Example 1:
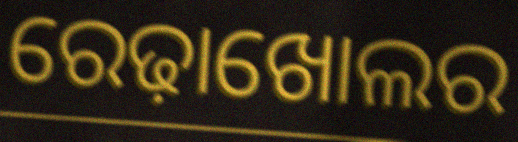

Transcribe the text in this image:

ରେଢ଼ାଖୋଲର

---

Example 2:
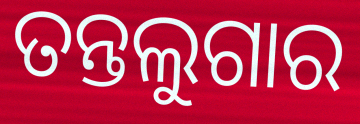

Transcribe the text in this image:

ତନ୍ତଲୁଗାର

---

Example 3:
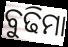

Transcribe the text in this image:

ବୁଢିମା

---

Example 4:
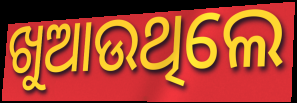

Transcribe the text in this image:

ଖୁଆଉଥିଲେ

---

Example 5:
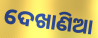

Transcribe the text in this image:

ଦେଖାଣିଆ